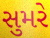
સુમરે